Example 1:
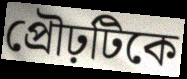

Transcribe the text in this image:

প্রৌঢ়টিকে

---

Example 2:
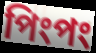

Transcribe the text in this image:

পিংপং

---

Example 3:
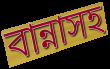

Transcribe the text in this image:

বান্নাসহ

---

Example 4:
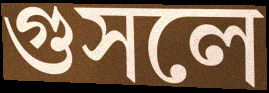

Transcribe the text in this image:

গুসলে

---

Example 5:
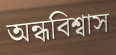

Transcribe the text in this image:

অন্ধবিশ্বাস